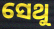
ସେଥୁ